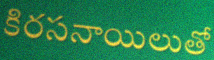
కిరసనాయిలుతో